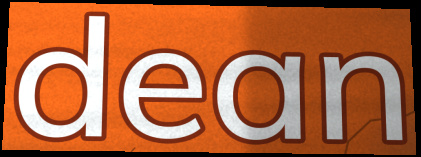
dean